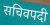
सचिवपदी